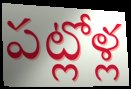
పట్లోళ్ల